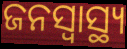
ଜନସ୍ୱାସ୍ଥ୍ୟ